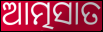
ଆତ୍ମସାତ